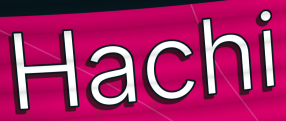
Hachi